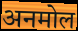
अनमोल